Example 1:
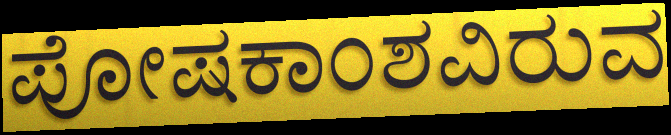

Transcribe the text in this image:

ಪೋಷಕಾಂಶವಿರುವ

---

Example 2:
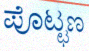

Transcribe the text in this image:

ಪೊಟ್ಟಣ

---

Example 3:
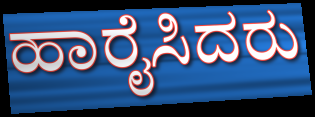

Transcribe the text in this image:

ಹಾರೈಸಿದರು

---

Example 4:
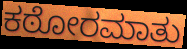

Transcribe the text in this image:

ಕಠೋರಮಾತು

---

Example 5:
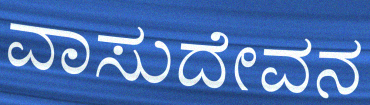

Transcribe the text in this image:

ವಾಸುದೇವನ